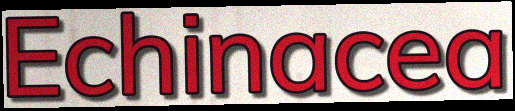
Echinacea